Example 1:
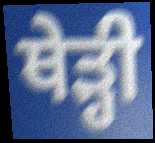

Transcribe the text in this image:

ਥੇੜ੍ਹੀ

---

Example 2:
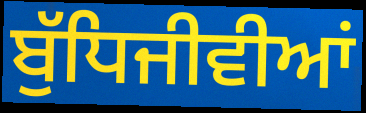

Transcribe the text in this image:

ਬੁੱਧਿਜੀਵੀਆਂ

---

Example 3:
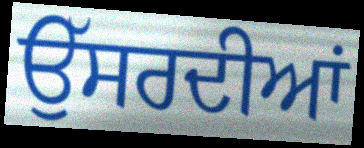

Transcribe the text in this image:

ਉੱਸਰਦੀਆਂ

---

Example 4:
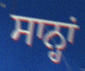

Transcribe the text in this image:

ਸਾਨ੍ਹਾਂ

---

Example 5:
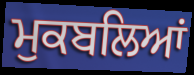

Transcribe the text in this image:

ਮੁਕਬਲਿਆਂ